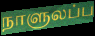
நாளுலப்ப